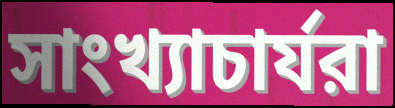
সাংখ্যাচার্যরা